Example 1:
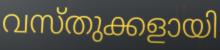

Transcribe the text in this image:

വസ്തുക്കളായി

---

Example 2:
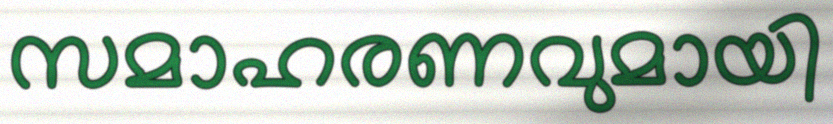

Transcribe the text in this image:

സമാഹരണവുമായി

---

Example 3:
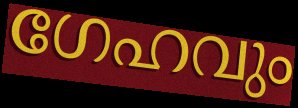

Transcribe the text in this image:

ഗേഹവും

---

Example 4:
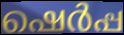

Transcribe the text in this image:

ഷെർപ്പ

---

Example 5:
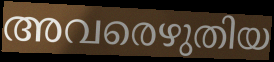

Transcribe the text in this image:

അവരെഴുതിയ